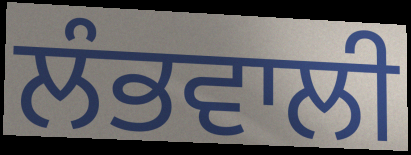
ਲੰਭਵਾਲੀ